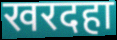
खरदहा